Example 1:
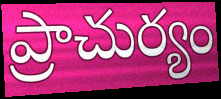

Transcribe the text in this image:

ప్రాచుర్యం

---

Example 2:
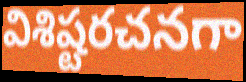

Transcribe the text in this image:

విశిష్టరచనగా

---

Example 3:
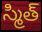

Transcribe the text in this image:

స్మిత్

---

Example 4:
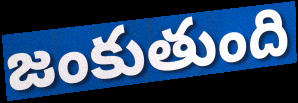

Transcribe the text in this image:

జంకుతుంది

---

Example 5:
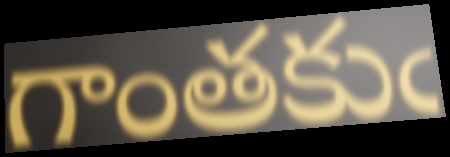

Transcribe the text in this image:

గాంతకుఁ